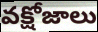
వక్షోజాలు